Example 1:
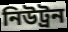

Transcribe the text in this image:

নিউট্রন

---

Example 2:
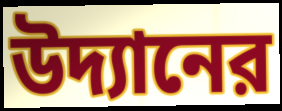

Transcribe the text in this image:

উদ্যানের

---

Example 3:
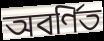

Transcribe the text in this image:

অবর্ণিত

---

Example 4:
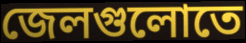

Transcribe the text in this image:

জেলগুলোতে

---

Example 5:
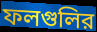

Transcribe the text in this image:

ফলগুলির